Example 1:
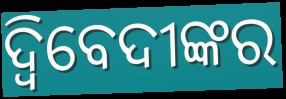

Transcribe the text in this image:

ଦ୍ଵିବେଦୀଙ୍କର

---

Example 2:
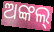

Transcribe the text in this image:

ଅଙ୍କଲ୍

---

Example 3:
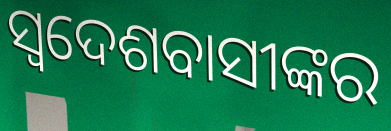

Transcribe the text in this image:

ସ୍ୱଦେଶବାସୀଙ୍କର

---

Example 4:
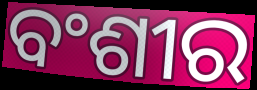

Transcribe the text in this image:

ବଂଶୀର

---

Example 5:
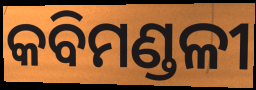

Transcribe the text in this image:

କବିମଣ୍ଡଳୀ